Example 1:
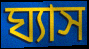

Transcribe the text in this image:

ঘ্যাস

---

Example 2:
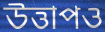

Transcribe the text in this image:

উত্তাপও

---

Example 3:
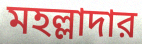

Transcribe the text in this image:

মহল্লাদার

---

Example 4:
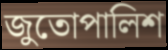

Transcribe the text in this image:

জুতোপালিশ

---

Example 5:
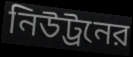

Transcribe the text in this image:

নিউট্রনের